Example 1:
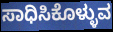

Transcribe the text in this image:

ಸಾಧಿಸಿಕೊಳ್ಳುವ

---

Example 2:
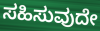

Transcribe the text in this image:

ಸಹಿಸುವುದೇ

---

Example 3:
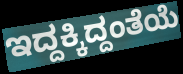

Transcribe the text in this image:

ಇದ್ದಕ್ಕಿದ್ದಂತೆಯೆ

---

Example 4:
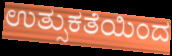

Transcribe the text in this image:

ಉತ್ಸುಕತೆಯಿಂದ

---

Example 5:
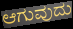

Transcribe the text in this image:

ಆಗುವುದು